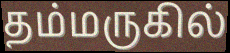
தம்மருகில்